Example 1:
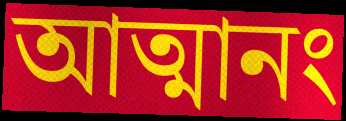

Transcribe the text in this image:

আত্মানং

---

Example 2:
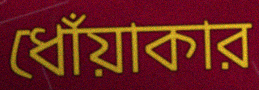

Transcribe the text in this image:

ধোঁয়াকার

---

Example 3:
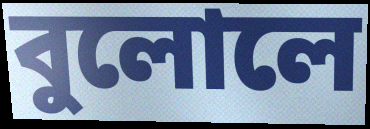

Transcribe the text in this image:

বুলোলে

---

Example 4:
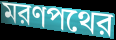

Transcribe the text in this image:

মরণপথের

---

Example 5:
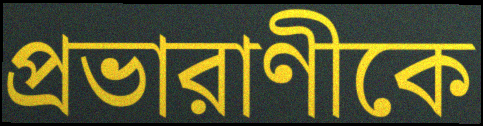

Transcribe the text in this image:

প্রভারাণীকে